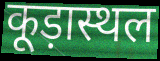
कूड़ास्थल